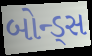
બોન્ડ્સ